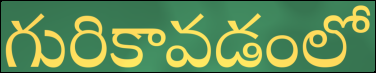
గురికావడంలో